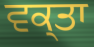
ਵਕ੍ਤਾ